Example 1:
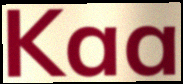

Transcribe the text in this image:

Kaa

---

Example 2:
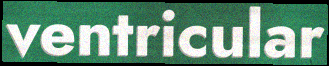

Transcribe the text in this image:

ventricular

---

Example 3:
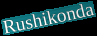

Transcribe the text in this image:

Rushikonda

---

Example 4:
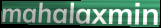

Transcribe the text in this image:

mahalaxmin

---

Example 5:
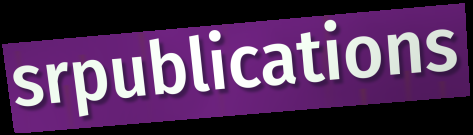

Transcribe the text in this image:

srpublications